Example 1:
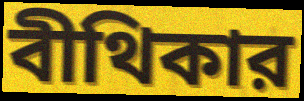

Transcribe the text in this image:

বীথিকার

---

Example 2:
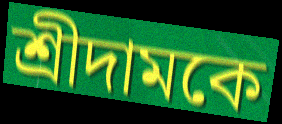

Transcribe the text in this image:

শ্রীদামকে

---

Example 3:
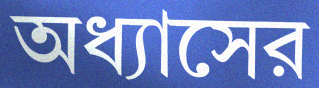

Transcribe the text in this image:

অধ্যাসের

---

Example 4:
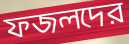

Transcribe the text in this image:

ফজলদের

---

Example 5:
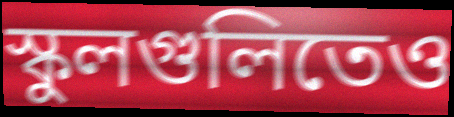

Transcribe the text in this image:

স্কুলগুলিতেও